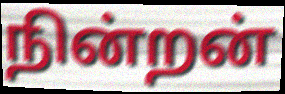
நின்றன்